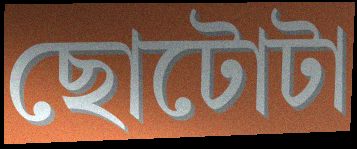
ছোটোটা